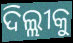
ଦିଲ୍ଲୀକୁ